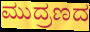
ಮುದ್ರಣದ